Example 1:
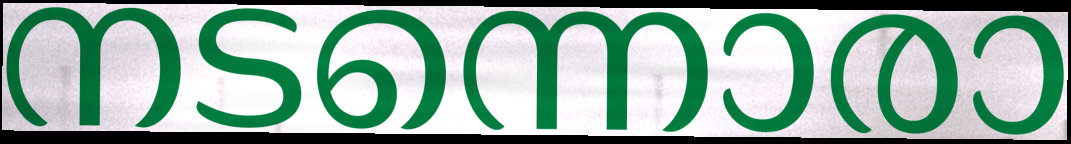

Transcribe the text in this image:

നടന്നൊരാ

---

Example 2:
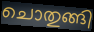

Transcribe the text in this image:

ചൊതുങ്ങി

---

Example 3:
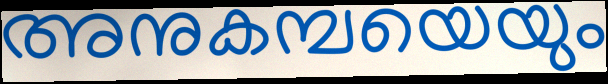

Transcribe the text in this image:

അനുകമ്പയെയും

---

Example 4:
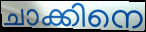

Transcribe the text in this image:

ചാക്കിനെ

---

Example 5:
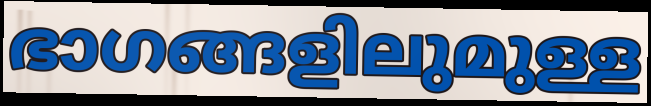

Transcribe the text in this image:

ഭാഗങ്ങളിലുമുള്ള